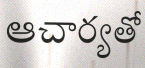
ఆచార్యతో